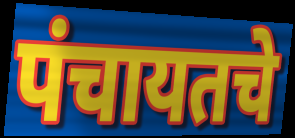
पंचायतचे